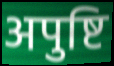
अपुष्टि